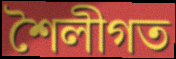
শৈলীগত